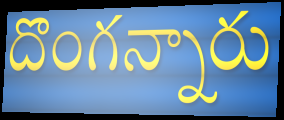
దొంగన్నారు